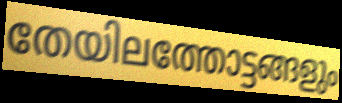
തേയിലത്തോട്ടങ്ങളും